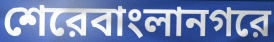
শেরেবাংলানগরে